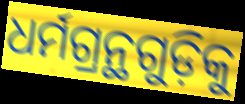
ଧର୍ମଗ୍ରନ୍ଥଗୁଡ଼ିକୁ